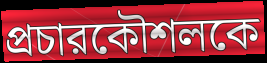
প্রচারকৌশলকে